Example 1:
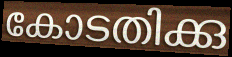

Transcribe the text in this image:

കോടതിക്കു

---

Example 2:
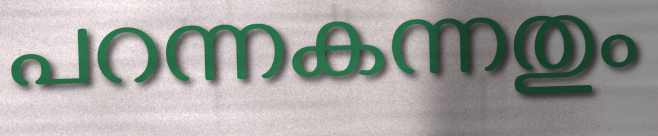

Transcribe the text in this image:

പറന്നകന്നതും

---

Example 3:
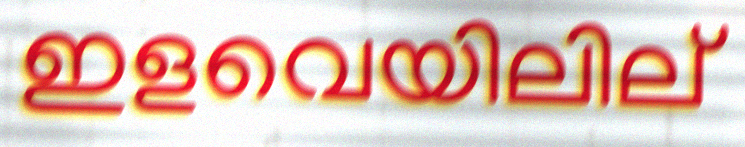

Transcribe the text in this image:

ഇളവെയിലില്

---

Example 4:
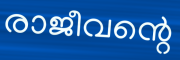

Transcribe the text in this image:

രാജീവന്റെ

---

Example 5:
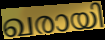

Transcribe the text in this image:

ഖരായി